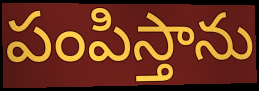
పంపిస్తాను